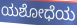
ಯಶೋಧೆಯ